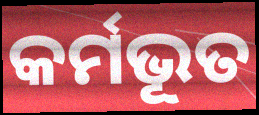
କର୍ମଭୂତ